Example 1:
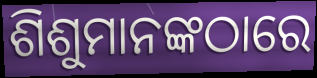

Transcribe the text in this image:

ଶିଶୁମାନଙ୍କଠାରେ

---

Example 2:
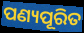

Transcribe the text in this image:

ପଣ୍ୟପୂରିତ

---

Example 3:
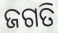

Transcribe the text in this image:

ଜଗତି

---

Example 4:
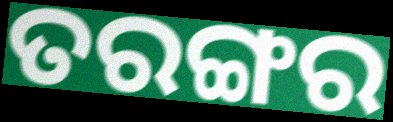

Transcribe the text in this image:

ତରଙ୍ଗର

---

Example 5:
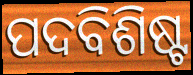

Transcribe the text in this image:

ପଦବିଶିଷ୍ଟ